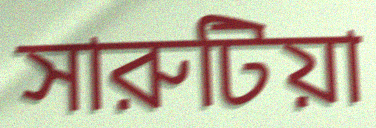
সারুটিয়া